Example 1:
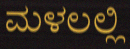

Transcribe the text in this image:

ಮಳಲಲ್ಲಿ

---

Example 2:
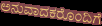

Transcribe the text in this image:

ಅನುವಾದಕರೊಂದಿಗೆ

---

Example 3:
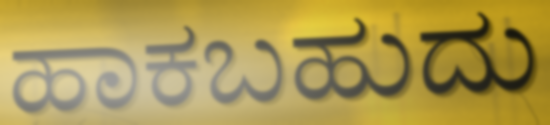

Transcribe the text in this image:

ಹಾಕಬಹುದು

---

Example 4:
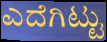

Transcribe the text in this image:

ಎದೆಗಿಟ್ಟು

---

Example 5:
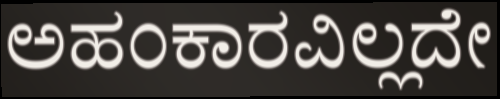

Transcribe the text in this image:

ಅಹಂಕಾರವಿಲ್ಲದೇ